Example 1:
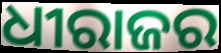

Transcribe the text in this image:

ଧୀରାଜର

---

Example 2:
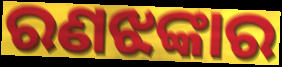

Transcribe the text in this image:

ରଣଝଙ୍କାର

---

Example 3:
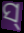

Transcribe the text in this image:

ସ୍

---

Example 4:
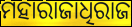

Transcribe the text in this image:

ମହାରାଜାଧିରାଜ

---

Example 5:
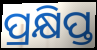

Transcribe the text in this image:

ପ୍ରକ୍ଷିପ୍ତ